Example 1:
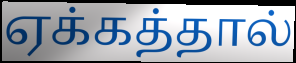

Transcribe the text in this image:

ஏக்கத்தால்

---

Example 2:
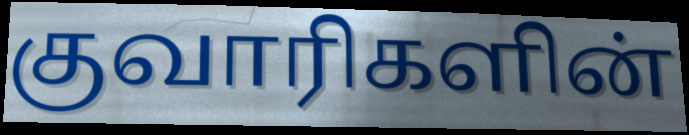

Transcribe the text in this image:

குவாரிகளின்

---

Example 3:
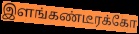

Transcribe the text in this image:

இளங்கண்டீரக்கோ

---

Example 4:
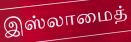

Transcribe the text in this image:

இஸ்லாமைத்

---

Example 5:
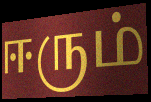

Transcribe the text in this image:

ஈரும்